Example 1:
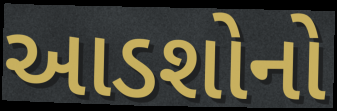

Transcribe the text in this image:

આડશોનો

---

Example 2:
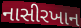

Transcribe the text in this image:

નાસીરખાન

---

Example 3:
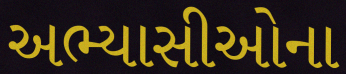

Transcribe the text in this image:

અભ્યાસીઓના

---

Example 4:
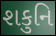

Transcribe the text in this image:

શકુનિ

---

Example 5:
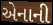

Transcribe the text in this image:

એનાની